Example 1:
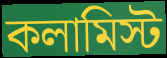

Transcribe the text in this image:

কলামিস্ট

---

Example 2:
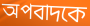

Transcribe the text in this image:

অপবাদকে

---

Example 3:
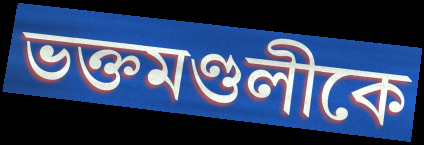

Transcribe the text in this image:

ভক্তমণ্ডলীকে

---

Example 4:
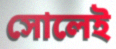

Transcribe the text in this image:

সোলেই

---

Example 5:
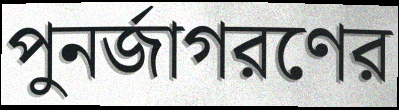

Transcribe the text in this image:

পুনর্জাগরণের